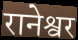
रानेश्वर